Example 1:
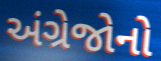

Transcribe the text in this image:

અંગ્રેજોનો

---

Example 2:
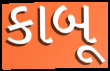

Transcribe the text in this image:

કાબૂ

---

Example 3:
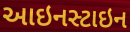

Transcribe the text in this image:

આઇનસ્ટાઇન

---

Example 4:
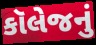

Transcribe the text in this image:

કૉલેજનું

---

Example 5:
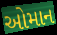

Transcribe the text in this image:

ઓમાન